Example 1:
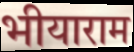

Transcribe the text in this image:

भीयाराम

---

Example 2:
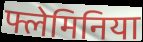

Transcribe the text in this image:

फ्लेमिनिया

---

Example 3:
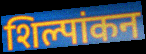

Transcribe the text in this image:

शिल्पांकन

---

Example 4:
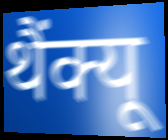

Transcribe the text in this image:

थैंक्यू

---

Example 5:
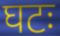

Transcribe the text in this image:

घटः